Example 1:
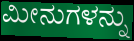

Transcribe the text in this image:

ಮೀನುಗಳನ್ನು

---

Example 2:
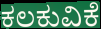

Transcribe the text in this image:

ಕಲಕುವಿಕೆ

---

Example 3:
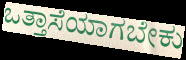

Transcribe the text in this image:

ಒತ್ತಾಸೆಯಾಗಬೇಕು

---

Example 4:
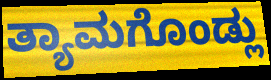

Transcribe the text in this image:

ತ್ಯಾಮಗೊಂಡ್ಲು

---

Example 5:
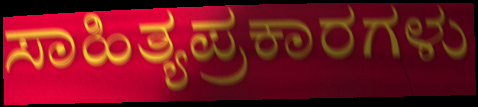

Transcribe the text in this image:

ಸಾಹಿತ್ಯಪ್ರಕಾರಗಳು